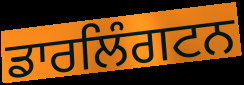
ਡਾਰਲਿੰਗਟਨ